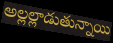
అల్లల్లాడుతున్నాయి